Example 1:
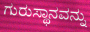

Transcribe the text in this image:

ಗುರುಸ್ಥಾನವನ್ನು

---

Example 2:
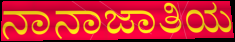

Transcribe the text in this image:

ನಾನಾಜಾತಿಯ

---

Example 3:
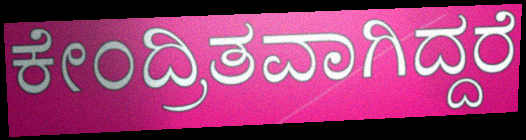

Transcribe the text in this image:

ಕೇಂದ್ರಿತವಾಗಿದ್ದರೆ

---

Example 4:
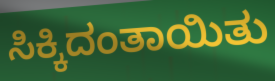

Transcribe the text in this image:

ಸಿಕ್ಕಿದಂತಾಯಿತು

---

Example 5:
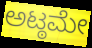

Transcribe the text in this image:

ಅಟ್ಠಮೇ